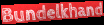
Bundelkhand